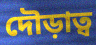
দৌড়াত্ব